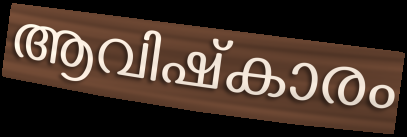
ആവിഷ്‌കാരം